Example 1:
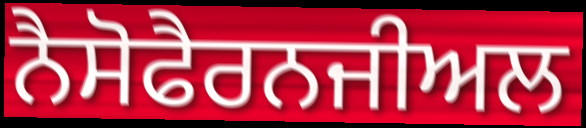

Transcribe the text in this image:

ਨੈਸੋਫੈਰਨਜੀਅਲ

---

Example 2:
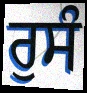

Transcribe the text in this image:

ਰੁਸੰ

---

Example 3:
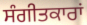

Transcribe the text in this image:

ਸੰਗੀਤਕਾਰਾਂ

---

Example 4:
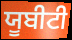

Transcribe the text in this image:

ਯੂਬੀਟੀ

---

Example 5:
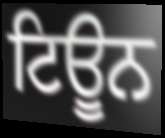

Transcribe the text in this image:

ਟਿਊਨ